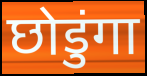
छोडुंगा